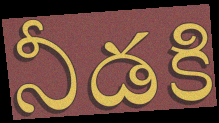
నీడకి